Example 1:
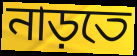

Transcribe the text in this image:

নাড়তে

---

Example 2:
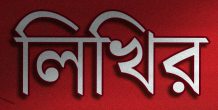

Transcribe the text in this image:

লিখির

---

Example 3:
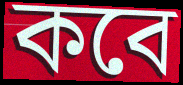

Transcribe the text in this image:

কবে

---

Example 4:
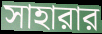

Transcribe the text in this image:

সাহারার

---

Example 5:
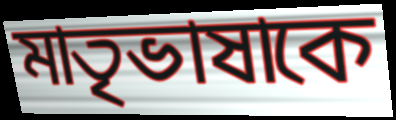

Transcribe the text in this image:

মাতৃভাষাকে